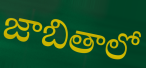
జాబితాలో